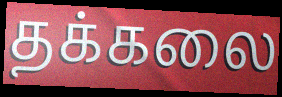
தக்கலை